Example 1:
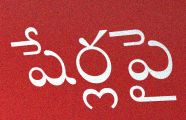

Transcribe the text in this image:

షేర్లపై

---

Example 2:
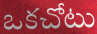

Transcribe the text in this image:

ఒకచోటు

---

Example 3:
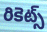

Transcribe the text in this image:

రికెట్స్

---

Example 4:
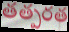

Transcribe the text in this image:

తత్పరత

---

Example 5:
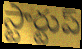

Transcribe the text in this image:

స్టార్టుప్